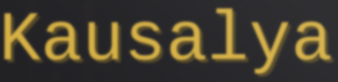
Kausalya